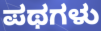
ಪಥಗಳು